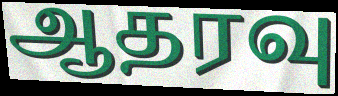
ஆதரவு